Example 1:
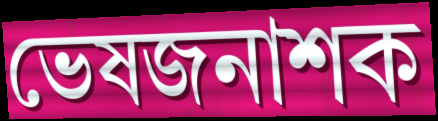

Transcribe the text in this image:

ভেষজনাশক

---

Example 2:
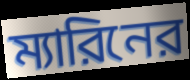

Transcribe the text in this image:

ম্যারিনের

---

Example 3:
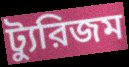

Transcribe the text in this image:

ট্যুরিজম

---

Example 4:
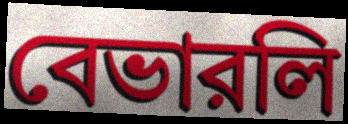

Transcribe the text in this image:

বেভারলি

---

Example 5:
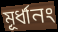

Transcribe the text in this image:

মূর্ধানং